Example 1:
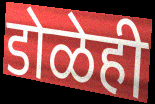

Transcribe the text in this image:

डोळेही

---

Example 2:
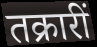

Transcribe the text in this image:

तक्रारीं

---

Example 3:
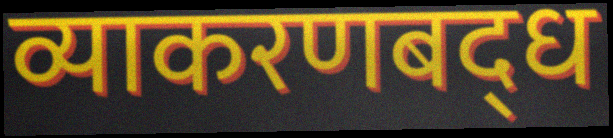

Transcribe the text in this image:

व्याकरणबद्ध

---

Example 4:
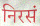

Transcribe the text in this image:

निरसं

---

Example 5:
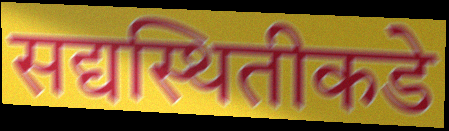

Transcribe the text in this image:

सद्यस्थितीकडे